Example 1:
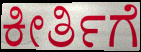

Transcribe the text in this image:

ಕೀರ್ತಿಗೆ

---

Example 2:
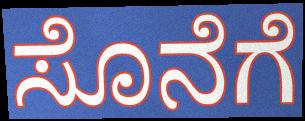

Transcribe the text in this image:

ಸೊನೆಗೆ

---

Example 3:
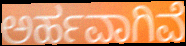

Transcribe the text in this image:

ಅರ್ಹವಾಗಿವೆ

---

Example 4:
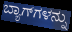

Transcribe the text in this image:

ಬ್ಯಾಗ್‍ಗಳನ್ನು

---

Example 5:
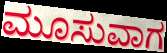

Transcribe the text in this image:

ಮೂಸುವಾಗ